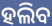
ହଲିବ